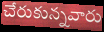
చేరుకున్నవారు